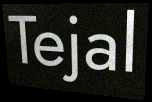
Tejal